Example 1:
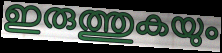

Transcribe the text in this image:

ഇരുത്തുകയും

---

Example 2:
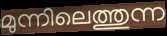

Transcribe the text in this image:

മുന്നിലെത്തുന്ന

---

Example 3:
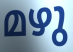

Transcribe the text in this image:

മഴു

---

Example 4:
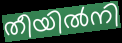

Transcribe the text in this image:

തീയിൽനി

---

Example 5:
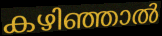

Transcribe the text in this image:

കഴിഞ്ഞാൽ